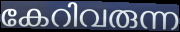
കേറിവരുന്ന